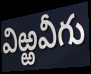
విఱ్ఱవీగు